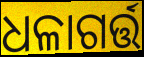
ଧଳାଗର୍ତ୍ତ